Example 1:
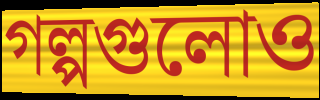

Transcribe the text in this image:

গল্পগুলোও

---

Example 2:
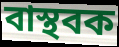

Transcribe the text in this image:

বাস্থবক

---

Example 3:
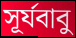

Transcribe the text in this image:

সূর্যবাবু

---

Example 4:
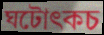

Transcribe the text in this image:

ঘটোৎকচ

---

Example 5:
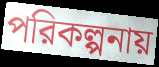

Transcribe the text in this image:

পরিকল্পনায়